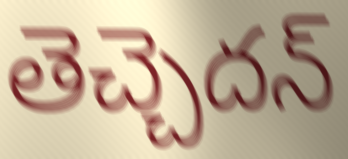
తెచ్చెదన్